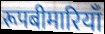
रूपबीमारियाँ